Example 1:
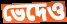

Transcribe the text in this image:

ভেদেও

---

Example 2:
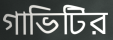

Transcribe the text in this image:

গাভিটির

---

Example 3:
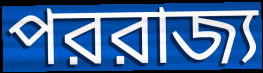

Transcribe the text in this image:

পররাজ্য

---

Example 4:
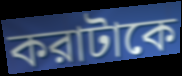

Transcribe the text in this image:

করাটাকে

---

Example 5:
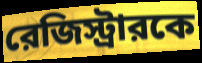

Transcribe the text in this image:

রেজিস্ট্রারকে